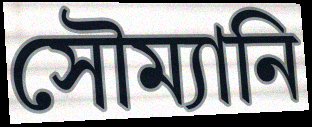
সৌম্যানি